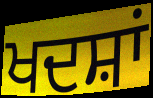
ਖਦਸ਼ਾਂ